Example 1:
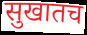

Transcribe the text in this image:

सुखातच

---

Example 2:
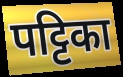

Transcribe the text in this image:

पट्टिका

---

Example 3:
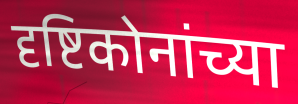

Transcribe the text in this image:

दृष्टिकोनांच्या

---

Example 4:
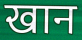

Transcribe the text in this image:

खान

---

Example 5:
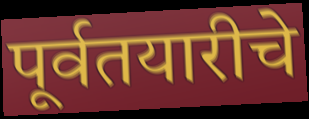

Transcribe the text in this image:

पूर्वतयारीचे